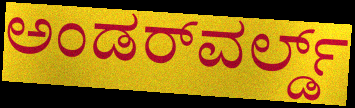
ಅಂಡರ್‌ವರ್ಲ್ಡ್